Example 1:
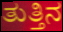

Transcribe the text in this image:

ತುತ್ತಿನ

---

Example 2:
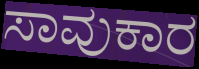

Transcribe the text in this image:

ಸಾವುಕಾರ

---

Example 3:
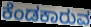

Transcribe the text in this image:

ಕೆಂಡಕಾರುವ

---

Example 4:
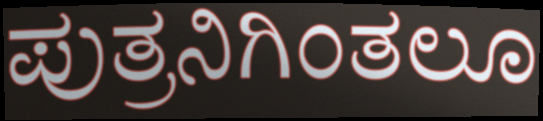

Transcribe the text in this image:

ಪುತ್ರನಿಗಿಂತಲೂ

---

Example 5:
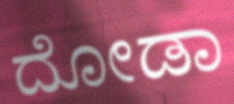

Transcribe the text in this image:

ದೋಡಾ